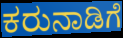
ಕರುನಾಡಿಗೆ